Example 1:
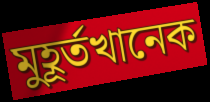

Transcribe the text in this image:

মুহূর্তখানেক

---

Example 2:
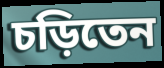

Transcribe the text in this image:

চড়িতেন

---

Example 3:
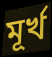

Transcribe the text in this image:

মূর্খ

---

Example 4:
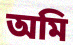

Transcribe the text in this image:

অমি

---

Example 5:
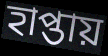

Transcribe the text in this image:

হাপ্তায়